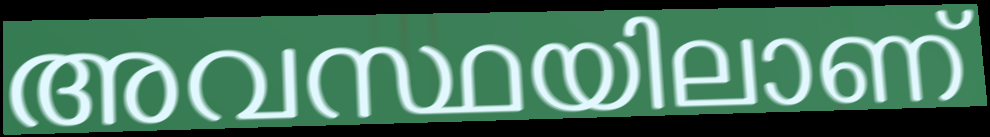
അവസ്ഥയിലാണ്